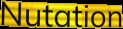
Nutation